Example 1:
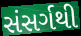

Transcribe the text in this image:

સંસર્ગથી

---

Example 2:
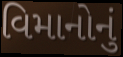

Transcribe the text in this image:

વિમાનોનું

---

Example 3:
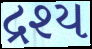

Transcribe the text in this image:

દ્રશ્ય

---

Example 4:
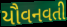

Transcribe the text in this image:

યૌવનવતી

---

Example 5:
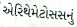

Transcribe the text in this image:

એરિથેમેટોસસનું